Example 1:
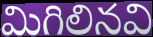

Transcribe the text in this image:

మిగిలినవి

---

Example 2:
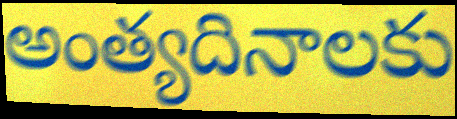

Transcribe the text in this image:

అంత్యదినాలకు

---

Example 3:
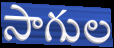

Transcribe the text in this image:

సాగుల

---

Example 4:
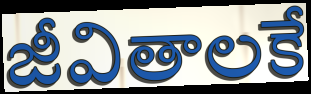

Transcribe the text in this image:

జీవితాలకే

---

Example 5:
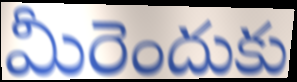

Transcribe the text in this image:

మీరెందుకు